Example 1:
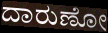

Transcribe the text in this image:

ದಾರುಣೋ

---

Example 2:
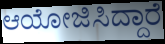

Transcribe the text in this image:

ಆಯೋಜಿಸಿದ್ದಾರೆ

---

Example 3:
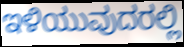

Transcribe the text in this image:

ಇಳಿಯುವುದರಲ್ಲಿ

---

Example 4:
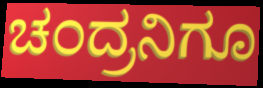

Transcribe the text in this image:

ಚಂದ್ರನಿಗೂ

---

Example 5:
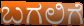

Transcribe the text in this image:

ಬಗಲಿಗೆ